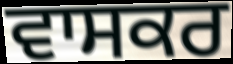
ਵਾਸਕਰ